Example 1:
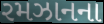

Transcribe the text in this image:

રમઝાનના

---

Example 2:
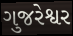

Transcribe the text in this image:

ગુજરેશ્વર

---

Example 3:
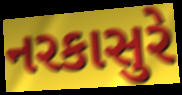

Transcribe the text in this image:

નરકાસુરે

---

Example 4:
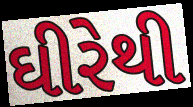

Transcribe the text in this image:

ઘીરેથી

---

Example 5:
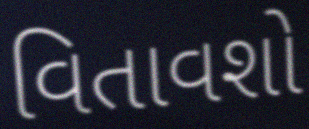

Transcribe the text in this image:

વિતાવશો